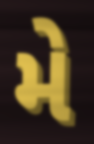
મે